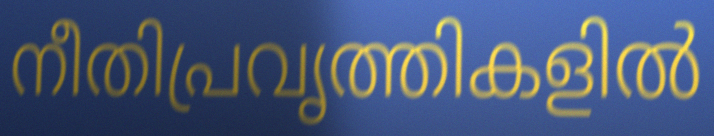
നീതിപ്രവൃത്തികളിൽ